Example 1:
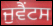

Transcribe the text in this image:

ਜੁਵੈਂਟਸ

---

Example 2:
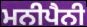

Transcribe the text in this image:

ਮਨੀਪੈਨੀ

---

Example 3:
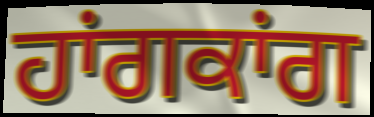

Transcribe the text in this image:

ਹਾਂਗਕਾਂਗ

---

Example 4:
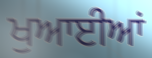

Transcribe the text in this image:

ਖੁਆਈਆਂ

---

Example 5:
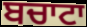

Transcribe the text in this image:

ਬਚਾਟਾ